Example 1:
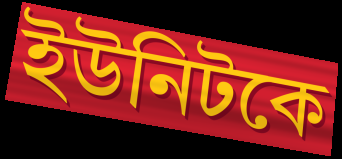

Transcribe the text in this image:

ইউনিটকে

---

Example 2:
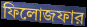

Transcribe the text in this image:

ফিলোজফার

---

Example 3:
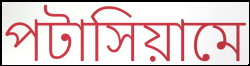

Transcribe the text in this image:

পটাসিয়ামে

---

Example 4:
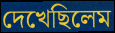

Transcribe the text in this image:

দেখেছিলেম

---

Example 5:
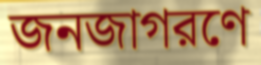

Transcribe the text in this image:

জনজাগরণে